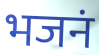
भजनं